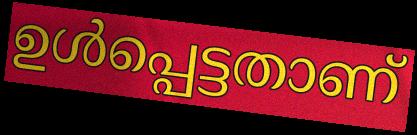
ഉൾപ്പെട്ടതാണ്